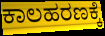
ಕಾಲಹರಣಕ್ಕೆ